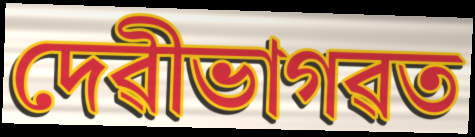
দেৱীভাগৱত